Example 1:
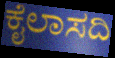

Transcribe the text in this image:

ಕೈಲಾಸದಿ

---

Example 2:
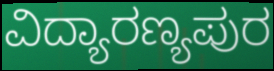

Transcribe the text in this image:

ವಿದ್ಯಾರಣ್ಯಪುರ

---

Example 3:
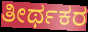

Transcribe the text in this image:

ತೀರ್ಥಕರ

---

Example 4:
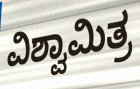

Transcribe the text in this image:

ವಿಶ್ವಾಮಿತ್ರ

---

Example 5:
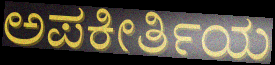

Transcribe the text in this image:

ಅಪಕೀರ್ತಿಯ